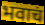
भवाचं